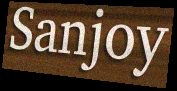
Sanjoy